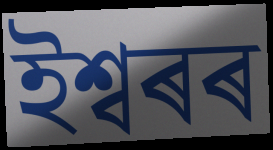
ইশ্বৰৰ